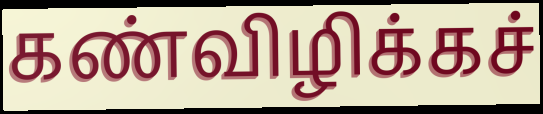
கண்விழிக்கச்